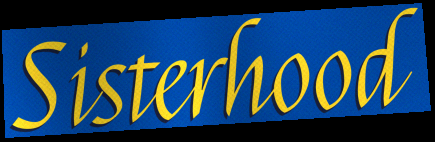
Sisterhood